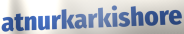
atnurkarkishore